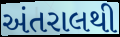
અંતરાલથી